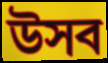
উসব